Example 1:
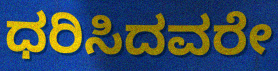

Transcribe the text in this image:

ಧರಿಸಿದವರೇ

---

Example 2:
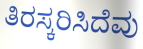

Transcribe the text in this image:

ತಿರಸ್ಕರಿಸಿದೆವು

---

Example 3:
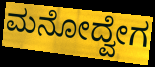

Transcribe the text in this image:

ಮನೋದ್ವೇಗ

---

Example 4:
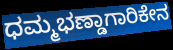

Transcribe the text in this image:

ಧಮ್ಮಭಣ್ಡಾಗಾರಿಕೇನ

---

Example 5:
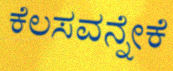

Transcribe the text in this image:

ಕೆಲಸವನ್ನೇಕೆ